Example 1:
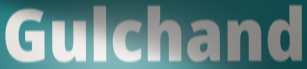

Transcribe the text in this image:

Gulchand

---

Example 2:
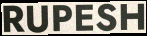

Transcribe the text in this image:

RUPESH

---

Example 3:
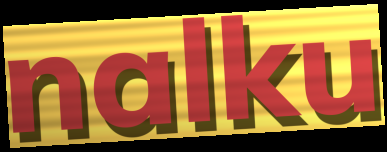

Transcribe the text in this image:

nalku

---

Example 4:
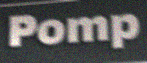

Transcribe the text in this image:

Pomp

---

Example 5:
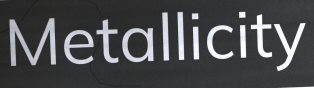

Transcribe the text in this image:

Metallicity